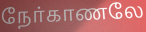
நேர்காணலே